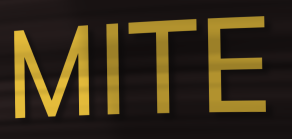
MITE